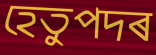
হেতুপদৰ